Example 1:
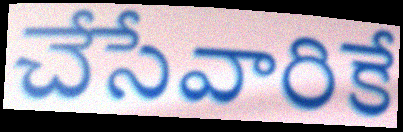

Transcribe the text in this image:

చేసేవారికే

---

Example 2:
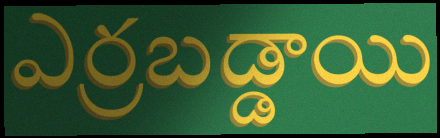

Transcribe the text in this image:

ఎర్రబడ్డాయి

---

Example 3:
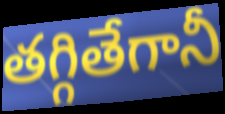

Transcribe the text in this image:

తగ్గితేగానీ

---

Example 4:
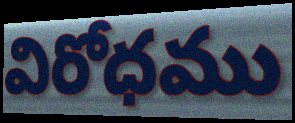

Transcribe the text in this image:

విరోధము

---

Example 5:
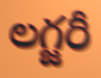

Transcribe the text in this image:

లగ్జరీ